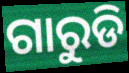
ଗାରୁଡି